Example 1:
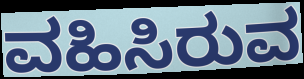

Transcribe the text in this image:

ವಹಿಸಿರುವ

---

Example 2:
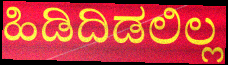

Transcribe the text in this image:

ಹಿಡಿದಿಡಲಿಲ್ಲ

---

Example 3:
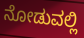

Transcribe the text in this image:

ನೋಡುವಲ್ಲಿ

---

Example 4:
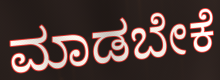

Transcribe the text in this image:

ಮಾಡಬೇಕೆ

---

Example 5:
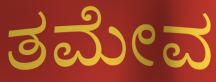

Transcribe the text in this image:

ತಮೇವ